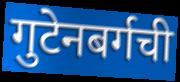
गुटेनबर्गची